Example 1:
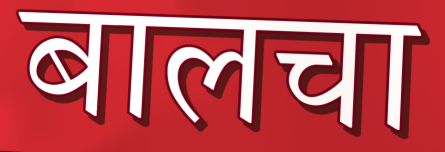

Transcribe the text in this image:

बालचा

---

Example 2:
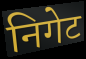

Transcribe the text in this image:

निगेट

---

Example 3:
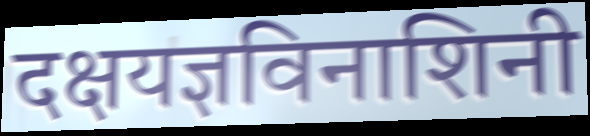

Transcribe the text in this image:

दक्षयज्ञविनाशिनी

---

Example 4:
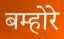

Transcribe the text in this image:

बम्होरे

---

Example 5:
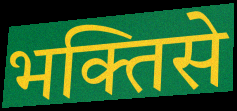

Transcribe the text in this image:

भक्तिसे